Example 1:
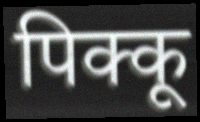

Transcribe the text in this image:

पिक्कू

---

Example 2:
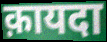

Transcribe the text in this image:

क़ायदा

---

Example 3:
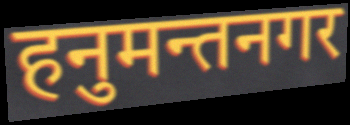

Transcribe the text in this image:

हनुमन्तनगर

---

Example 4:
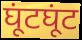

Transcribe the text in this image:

घूंटघूंट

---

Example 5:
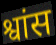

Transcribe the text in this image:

श्वांस